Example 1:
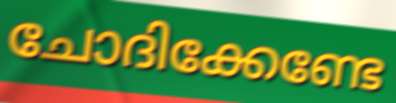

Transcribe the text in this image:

ചോദിക്കേണ്ടേ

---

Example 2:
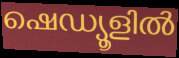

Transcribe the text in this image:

ഷെഡ്യൂളിൽ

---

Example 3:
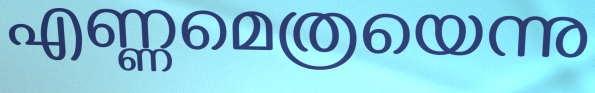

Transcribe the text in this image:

എണ്ണമെത്രയെന്നു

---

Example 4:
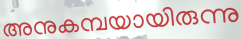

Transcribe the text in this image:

അനുകമ്പയായിരുന്നു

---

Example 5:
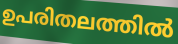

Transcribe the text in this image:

ഉപരിതലത്തിൽ